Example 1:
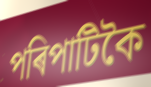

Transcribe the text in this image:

পৰিপাটিকৈ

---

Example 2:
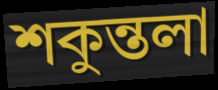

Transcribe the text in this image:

শকুন্তলা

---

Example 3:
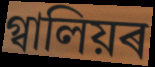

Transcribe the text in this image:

গ্বালিয়ৰ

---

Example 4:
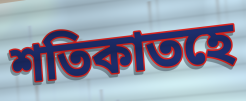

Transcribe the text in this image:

শতিকাতহে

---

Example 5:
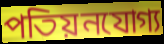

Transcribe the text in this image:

পতিয়নযোগ্য